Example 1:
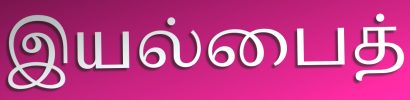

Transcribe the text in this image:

இயல்பைத்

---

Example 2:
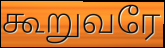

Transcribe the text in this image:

கூறுவரே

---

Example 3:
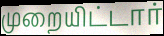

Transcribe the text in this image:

முறையிட்டார்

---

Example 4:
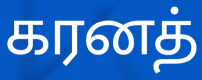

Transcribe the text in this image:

கரனத்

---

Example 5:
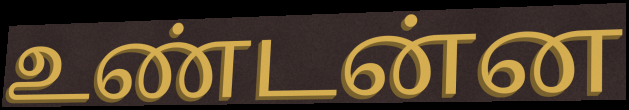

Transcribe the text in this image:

உண்டன்ன